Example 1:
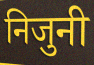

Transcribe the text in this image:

निजुनी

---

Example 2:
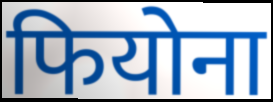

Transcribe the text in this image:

फियोना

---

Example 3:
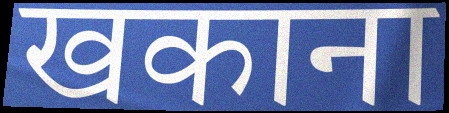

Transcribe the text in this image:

खकाना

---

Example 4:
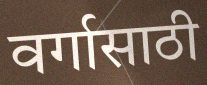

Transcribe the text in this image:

वर्गासाठी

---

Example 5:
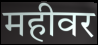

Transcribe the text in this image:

महीवर